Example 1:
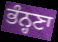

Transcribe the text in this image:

ਭੰਨ੍ਹਣਾ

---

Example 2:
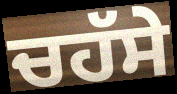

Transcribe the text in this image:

ਚਹੱਸੇ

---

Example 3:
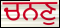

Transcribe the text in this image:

ਚਨਣੁ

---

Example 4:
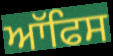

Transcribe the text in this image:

ਆੱਫਿਸ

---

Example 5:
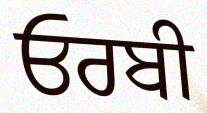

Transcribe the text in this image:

ਓਰਬੀ